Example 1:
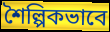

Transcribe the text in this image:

শৈল্পিকভাবে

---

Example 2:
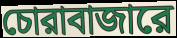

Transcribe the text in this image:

চোরাবাজারে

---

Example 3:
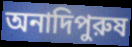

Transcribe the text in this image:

অনাদিপুরুষ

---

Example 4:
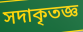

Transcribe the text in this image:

সদাকৃতজ্ঞ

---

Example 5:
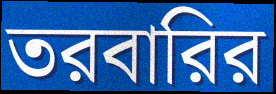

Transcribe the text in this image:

তরবারির